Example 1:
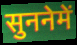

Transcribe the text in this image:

सुननेमें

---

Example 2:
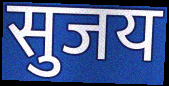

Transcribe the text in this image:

सुजय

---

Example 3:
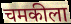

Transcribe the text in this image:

चमकीला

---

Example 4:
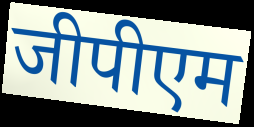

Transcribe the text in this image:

जीपीएम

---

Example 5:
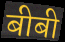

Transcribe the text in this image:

बीबी